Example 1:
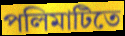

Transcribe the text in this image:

পলিমাটিতে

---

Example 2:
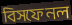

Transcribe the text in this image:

বিসফেনল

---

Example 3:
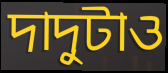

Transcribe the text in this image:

দাদুটাও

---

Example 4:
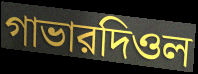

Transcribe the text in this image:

গাভারদিওল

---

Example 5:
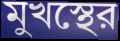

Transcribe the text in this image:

মুখস্থের